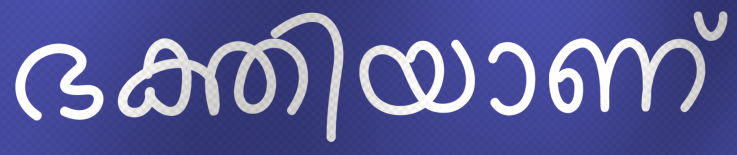
ഭക്തിയാണ്